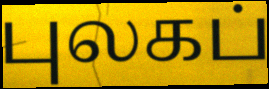
புலகப்